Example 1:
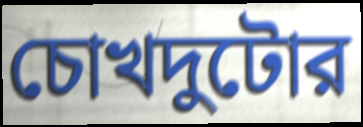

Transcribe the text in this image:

চোখদুটোর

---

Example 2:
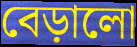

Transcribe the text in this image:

বেড়ালো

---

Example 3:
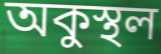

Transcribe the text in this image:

অকুস্থল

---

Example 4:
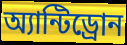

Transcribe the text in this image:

অ্যান্টিড্রোন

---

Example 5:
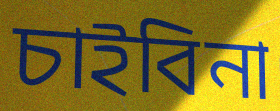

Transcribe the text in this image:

চাইবিনা